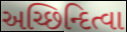
અચ્છિન્દિત્વા